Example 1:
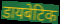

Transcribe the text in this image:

डायबेटिक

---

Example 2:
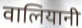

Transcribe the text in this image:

वालियानी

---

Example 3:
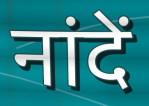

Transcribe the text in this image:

नांदें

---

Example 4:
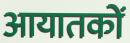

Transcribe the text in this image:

आयातकों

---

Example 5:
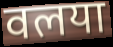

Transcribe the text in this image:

वलया